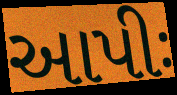
આપીઃ